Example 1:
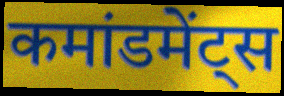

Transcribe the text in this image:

कमांडमेंट्स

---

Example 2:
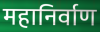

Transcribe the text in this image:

महानिर्वाण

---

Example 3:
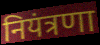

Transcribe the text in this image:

नियंत्रणा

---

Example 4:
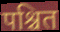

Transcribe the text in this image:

पश्चित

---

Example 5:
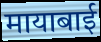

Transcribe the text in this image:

मायाबाई